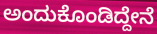
ಅಂದುಕೊಂಡಿದ್ದೇನೆ